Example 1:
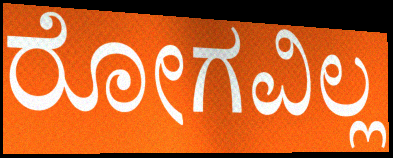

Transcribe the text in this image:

ರೋಗವಿಲ್ಲ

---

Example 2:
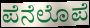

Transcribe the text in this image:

ಪೆನೆಲೊಪೆ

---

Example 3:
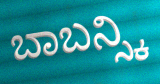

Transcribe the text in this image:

ಬಾಬನ್ಸ್ಕಿ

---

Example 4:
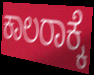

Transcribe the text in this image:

ಕಾಲರಾಕ್ಕೆ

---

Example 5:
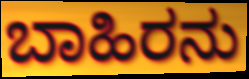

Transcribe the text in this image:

ಬಾಹಿರನು